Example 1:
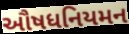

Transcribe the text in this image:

ઔષધનિયમન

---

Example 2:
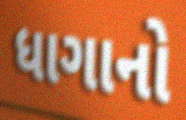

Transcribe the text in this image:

ધાગાનો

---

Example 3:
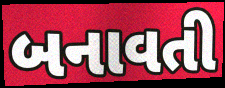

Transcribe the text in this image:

બનાવતી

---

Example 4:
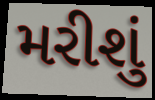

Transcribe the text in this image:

મરીશું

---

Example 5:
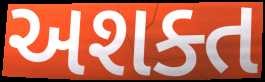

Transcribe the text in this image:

અશક્ત